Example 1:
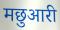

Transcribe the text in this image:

मछुआरी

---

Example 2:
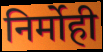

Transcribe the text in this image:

निर्मोही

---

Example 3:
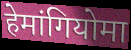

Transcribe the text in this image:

हेमांगियोमा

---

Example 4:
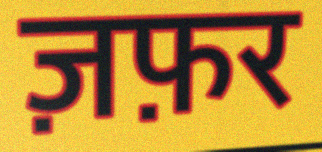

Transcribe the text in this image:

ज़फ़र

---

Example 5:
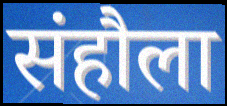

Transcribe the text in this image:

संहौला